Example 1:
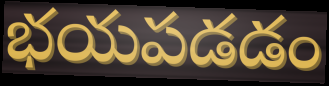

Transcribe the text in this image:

భయపడడం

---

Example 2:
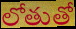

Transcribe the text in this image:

లోతుతో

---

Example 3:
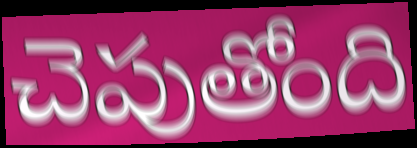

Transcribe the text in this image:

చెపుతోంది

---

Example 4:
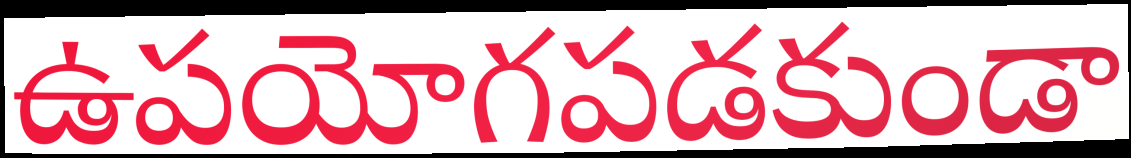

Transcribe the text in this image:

ఉపయోగపడకుండా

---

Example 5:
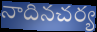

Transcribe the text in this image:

నాదినచర్య